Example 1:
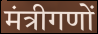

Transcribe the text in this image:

मंत्रीगणों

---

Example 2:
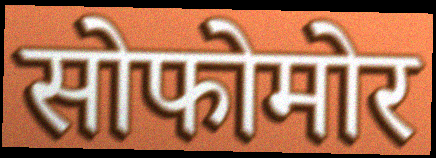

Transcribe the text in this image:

सोफोमोर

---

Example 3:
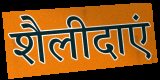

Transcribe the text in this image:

शैलीदाएं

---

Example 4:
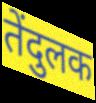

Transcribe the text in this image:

तेंदुलक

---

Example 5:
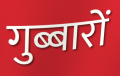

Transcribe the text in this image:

गुब्बारों